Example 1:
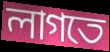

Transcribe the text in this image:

লাগতে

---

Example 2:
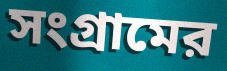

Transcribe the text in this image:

সংগ্রামের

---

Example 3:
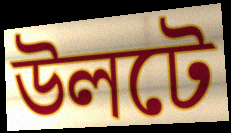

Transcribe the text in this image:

উলটে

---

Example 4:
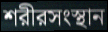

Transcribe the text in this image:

শরীরসংস্থান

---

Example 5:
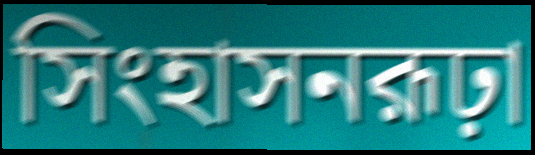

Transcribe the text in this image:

সিংহাসনরূঢ়া